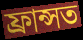
ফ্ৰান্সত